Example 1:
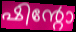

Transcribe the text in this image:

ഷിന്റോ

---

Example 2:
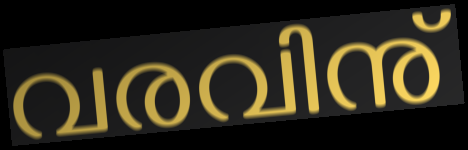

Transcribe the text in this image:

വരവിനു്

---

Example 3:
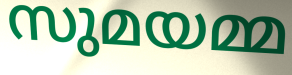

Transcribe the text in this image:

സുമയമ്മ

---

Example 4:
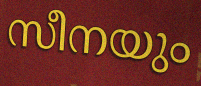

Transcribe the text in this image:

സീനയും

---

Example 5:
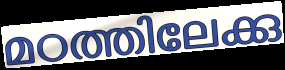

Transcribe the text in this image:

മഠത്തിലേക്കു